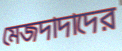
মেজদাদাদের